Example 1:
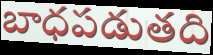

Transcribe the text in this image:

బాధపడుతది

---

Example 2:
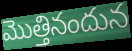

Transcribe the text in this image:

మొత్తినందున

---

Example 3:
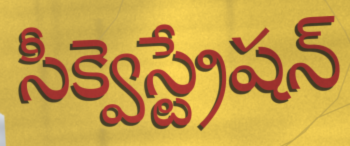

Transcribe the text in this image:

సీక్వెస్ట్రేషన్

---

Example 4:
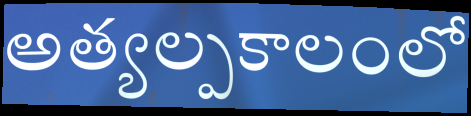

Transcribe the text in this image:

అత్యల్పకాలంలో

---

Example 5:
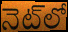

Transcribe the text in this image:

నెట్‌లో